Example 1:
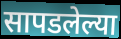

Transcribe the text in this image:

सापडलेल्या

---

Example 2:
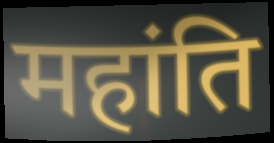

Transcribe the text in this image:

महांति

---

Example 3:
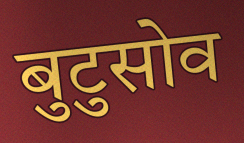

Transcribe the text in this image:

बुटुसोव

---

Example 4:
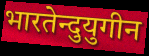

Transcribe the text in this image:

भारतेन्दुयुगीन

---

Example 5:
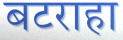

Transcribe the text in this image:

बटराहा